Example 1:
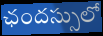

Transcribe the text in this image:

ఛందస్సులో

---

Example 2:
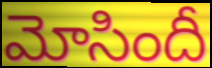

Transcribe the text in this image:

మోసిందీ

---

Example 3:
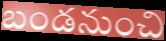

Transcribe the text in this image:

బండనుంచి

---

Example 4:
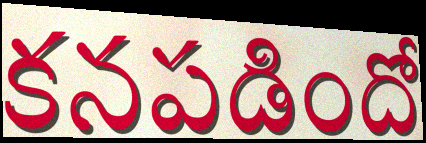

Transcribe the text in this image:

కనపడిందో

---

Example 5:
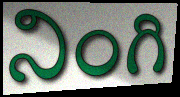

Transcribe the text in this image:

నింగి